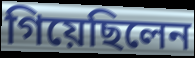
গিয়েছিলেন